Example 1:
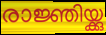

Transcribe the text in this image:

രാജ്ഞിയ്ക്കു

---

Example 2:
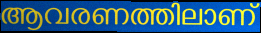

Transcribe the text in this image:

ആവരണത്തിലാണ്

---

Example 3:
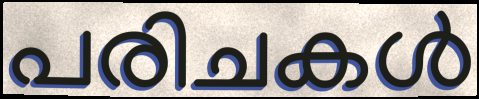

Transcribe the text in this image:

പരിചകൾ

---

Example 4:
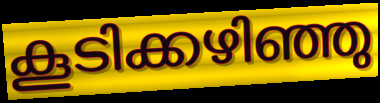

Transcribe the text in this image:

കൂടിക്കഴിഞ്ഞു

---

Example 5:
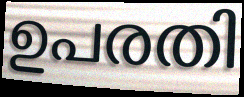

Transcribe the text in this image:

ഉപരതി